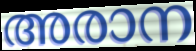
അരാന